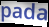
pada